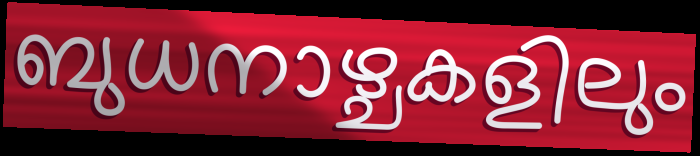
ബുധനാഴ്ചകളിലും